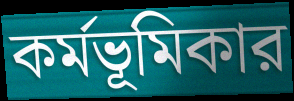
কর্মভূমিকার